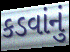
કડવાંનું